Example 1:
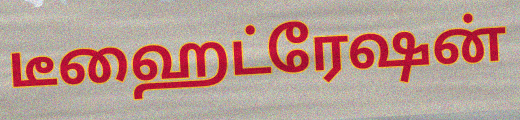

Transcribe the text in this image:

டீஹைட்ரேஷன்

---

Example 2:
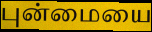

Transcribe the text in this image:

புன்மையை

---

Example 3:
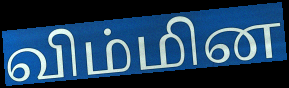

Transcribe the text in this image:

விம்மின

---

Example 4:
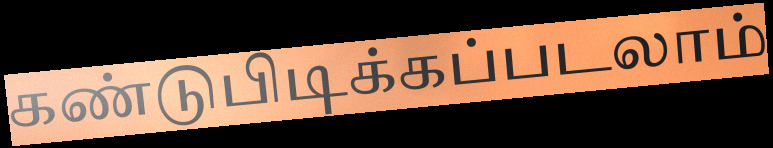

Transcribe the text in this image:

கண்டுபிடிக்கப்படலாம்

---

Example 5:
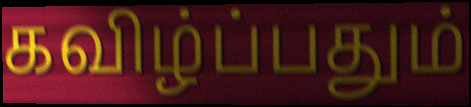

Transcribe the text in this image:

கவிழ்ப்பதும்